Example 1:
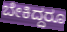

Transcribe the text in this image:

ಬೇಕಿದ್ದರೂ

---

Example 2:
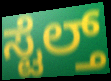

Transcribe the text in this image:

ಸ್ಟೆಲ್ತ್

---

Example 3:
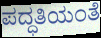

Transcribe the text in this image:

ಪದ್ಧತಿಯಂತೆ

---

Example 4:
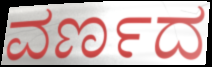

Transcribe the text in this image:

ವರ್ಣದ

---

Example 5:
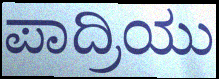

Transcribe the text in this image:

ಪಾದ್ರಿಯು